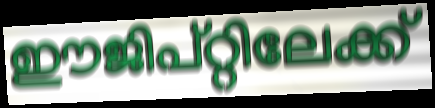
ഈജിപ്റ്റിലേക്ക്